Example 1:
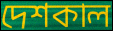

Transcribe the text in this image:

দেশকাল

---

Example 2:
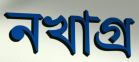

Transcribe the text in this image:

নখাগ্র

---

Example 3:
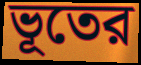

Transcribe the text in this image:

ভূতের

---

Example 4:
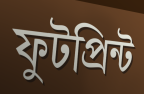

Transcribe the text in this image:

ফুটপ্রিন্ট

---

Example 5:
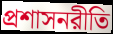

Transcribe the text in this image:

প্রশাসনরীতি